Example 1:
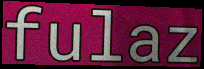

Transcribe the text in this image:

fulaz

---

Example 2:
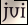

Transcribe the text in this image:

jui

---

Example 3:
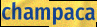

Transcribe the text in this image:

champaca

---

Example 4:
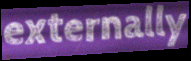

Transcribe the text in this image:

externally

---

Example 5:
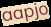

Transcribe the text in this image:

aapjo